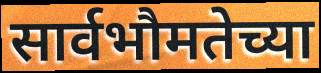
सार्वभौमतेच्या